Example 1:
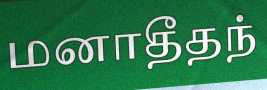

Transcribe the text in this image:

மனாதீதந்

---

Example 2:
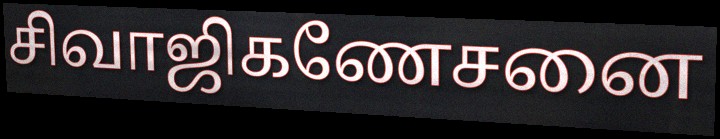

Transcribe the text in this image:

சிவாஜிகணேசனை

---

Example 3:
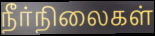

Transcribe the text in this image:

நீர்நிலைகள்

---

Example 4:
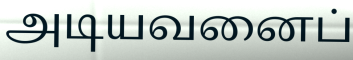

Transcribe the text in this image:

அடியவனைப்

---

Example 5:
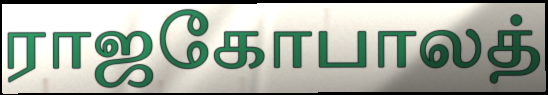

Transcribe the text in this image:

ராஜகோபாலத்